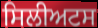
ਸਿਲੀਅਟਸ